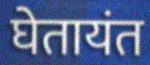
घेतायंत